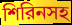
শিরিনসহ